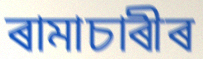
ৰামাচাৰীৰ